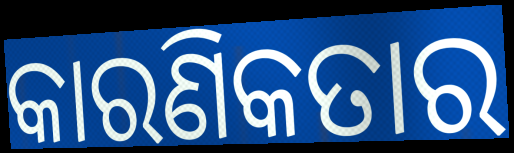
କାରଣିକତାର